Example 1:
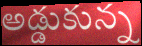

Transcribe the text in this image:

అడ్డుకున్న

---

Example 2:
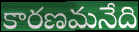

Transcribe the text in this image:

కారణమనేది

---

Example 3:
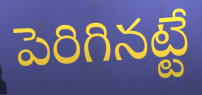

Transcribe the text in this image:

పెరిగినట్టే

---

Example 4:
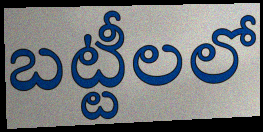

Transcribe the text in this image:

బట్టీలలో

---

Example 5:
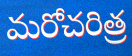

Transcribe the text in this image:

మరోచరిత్ర